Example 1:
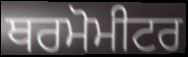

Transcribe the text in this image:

ਥਰਮੋਮੀਟਰ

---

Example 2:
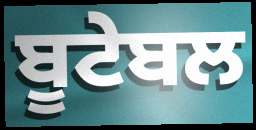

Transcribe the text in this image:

ਬੂਟੇਬਲ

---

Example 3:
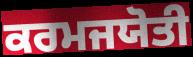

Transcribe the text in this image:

ਕਰਮਜਯੋਤੀ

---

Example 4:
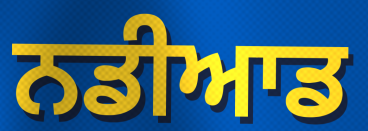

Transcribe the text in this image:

ਨਡੀਆਡ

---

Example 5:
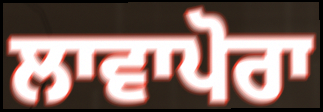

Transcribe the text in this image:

ਲਾਵਾਪੋਰਾ